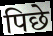
पिछे